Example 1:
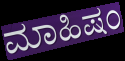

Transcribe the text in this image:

ಮಾಹಿಷಂ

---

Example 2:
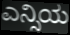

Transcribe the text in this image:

ಎನ್ಸಿಯ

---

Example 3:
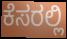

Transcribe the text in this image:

ಕೆಸರಲ್ಲಿ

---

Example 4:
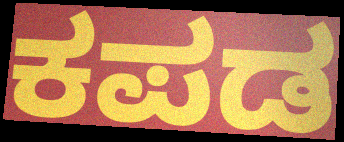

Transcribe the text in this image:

ಕಪಡ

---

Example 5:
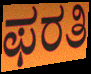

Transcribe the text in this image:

ಫರತಿ